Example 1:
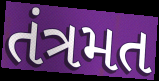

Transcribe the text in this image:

તંત્રમત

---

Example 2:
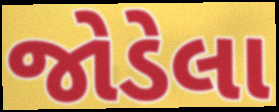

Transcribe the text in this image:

જોડેલા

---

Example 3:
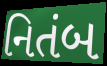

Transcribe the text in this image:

નિતંબ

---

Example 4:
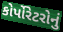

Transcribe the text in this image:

કોર્પોરેટરોનું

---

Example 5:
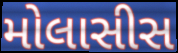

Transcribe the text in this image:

મોલાસીસ